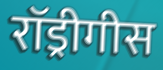
रॉड्रीगीस